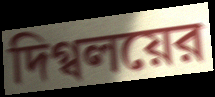
দিগ্বলয়ের